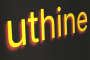
uthine